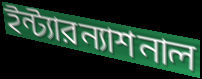
ইন্ট্যারন্যাশনাল